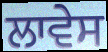
ਲਾਵੇਸ